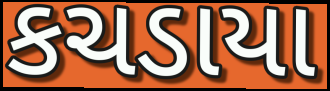
કચડાયા